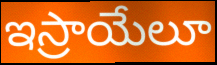
ఇస్రాయేలూ